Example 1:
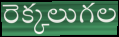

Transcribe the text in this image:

రెక్కలుగల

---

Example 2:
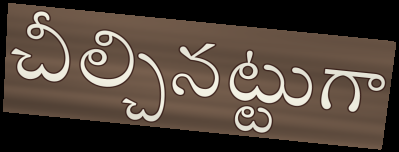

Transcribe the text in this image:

చీల్చినట్టుగా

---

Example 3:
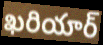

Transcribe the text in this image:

ఖరియార్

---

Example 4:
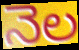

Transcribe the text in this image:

నెల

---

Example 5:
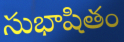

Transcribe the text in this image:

సుభాషితం